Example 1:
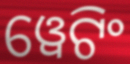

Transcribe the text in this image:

ୱେଟିଂ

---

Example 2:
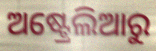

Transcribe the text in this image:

ଅଷ୍ଟ୍ରେଲିଆରୁ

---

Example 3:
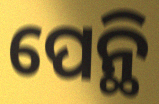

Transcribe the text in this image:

ପେନ୍ଥି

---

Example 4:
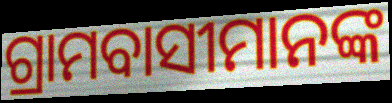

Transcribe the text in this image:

ଗ୍ରାମବାସୀମାନଙ୍କ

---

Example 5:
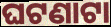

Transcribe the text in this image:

ଘଟଣାଟା